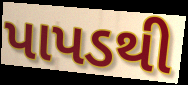
પાપડથી